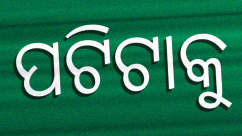
ପଟିଟାକୁ